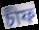
চীফ